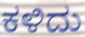
ಕಳಿದು